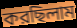
করছিলাম